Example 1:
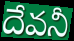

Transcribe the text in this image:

దేవనీ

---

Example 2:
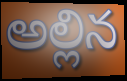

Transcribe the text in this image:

అల్లిన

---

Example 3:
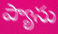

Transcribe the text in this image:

ప్యాసు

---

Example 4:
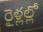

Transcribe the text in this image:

రైళ్లల్లో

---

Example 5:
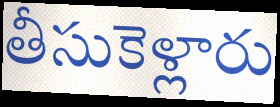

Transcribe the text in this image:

తీసుకెళ్లారు